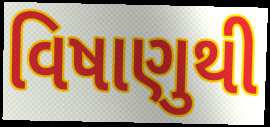
વિષાણુથી